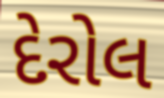
દેરોલ